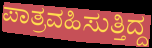
ಪಾತ್ರವಹಿಸುತ್ತಿದ್ದ